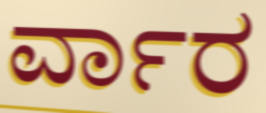
ರ್ವಾರ